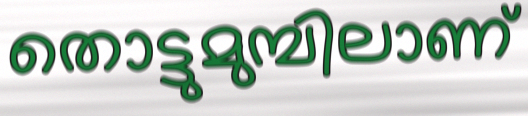
തൊട്ടുമുമ്പിലാണ്